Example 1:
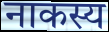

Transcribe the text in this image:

नाकस्य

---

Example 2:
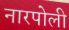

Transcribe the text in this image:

नारपोली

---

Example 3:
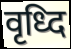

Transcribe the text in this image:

वृध्दि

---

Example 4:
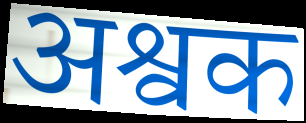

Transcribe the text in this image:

अश्वक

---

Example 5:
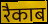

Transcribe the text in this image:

रैकाब